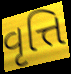
વૃત્તિ